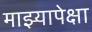
माझ्यापेक्षा